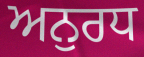
ਅਨੁਰਧ